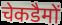
चेकडैमों